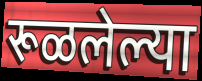
रूळलेल्या